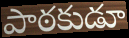
పాఠకుడూ